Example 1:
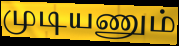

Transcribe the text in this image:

முடியணும்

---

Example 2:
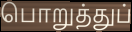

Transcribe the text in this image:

பொறுத்துப்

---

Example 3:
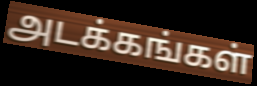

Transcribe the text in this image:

அடக்கங்கள்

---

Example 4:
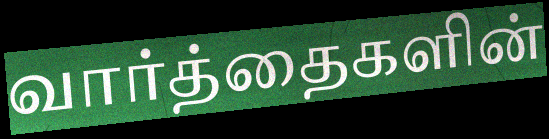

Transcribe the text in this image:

வார்த்தைகளின்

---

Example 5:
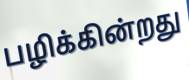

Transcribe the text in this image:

பழிக்கின்றது